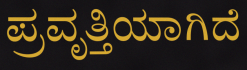
ಪ್ರವೃತ್ತಿಯಾಗಿದೆ